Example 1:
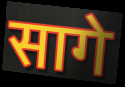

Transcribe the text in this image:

सागे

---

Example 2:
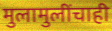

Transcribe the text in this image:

मुलामुलींचाही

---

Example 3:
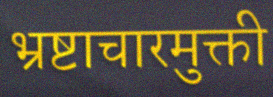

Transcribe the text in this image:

भ्रष्टाचारमुक्ती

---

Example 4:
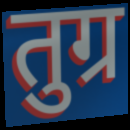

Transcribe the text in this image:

तुग्र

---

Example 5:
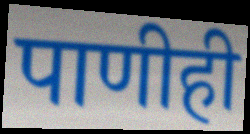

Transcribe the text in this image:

पाणीही